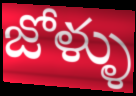
జోళ్ళు